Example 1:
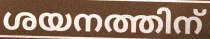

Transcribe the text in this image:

ശയനത്തിന്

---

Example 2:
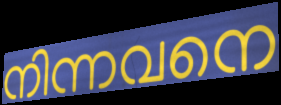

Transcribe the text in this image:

നിന്നവനെ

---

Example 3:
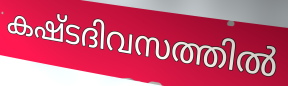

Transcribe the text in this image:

കഷ്ടദിവസത്തിൽ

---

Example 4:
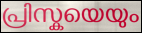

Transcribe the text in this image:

പ്രിസ്കയെയും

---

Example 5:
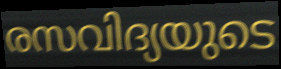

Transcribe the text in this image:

രസവിദ്യയുടെ